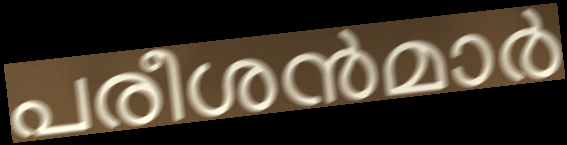
പരീശൻമാർ